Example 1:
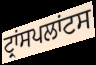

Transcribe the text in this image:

ਟ੍ਰਾਂਸਪਲਾਂਟਸ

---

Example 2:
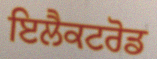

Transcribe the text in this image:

ਇਲੈਕਟਰੋਡ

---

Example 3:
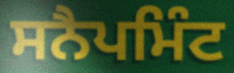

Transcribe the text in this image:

ਸਨੈਪਮਿੰਟ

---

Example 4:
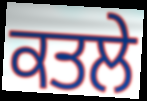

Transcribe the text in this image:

ਕਤਲੇ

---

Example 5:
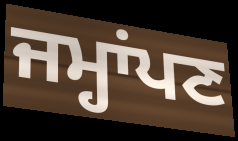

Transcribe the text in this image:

ਜਮ੍ਹਾਂਪਣ